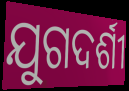
ଯୁଗଦର୍ଶୀ